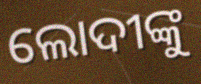
ଲୋଦୀଙ୍କୁ